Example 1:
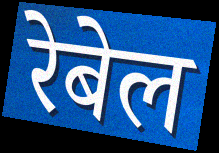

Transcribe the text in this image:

रेबेल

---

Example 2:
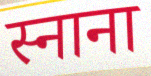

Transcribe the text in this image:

स्नाना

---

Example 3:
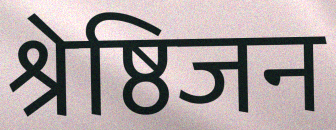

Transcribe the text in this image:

श्रेष्ठिजन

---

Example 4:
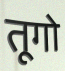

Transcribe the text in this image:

तूगो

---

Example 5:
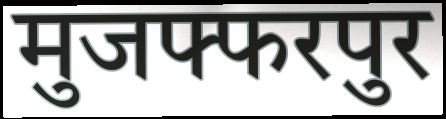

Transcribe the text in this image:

मुजफ्फरपुर